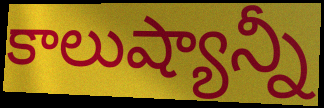
కాలుష్యాన్నీ